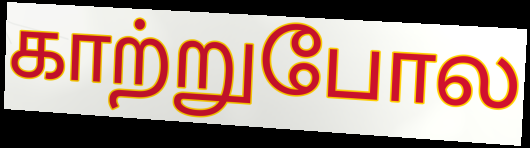
காற்றுபோல